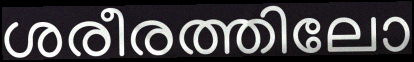
ശരീരത്തിലോ